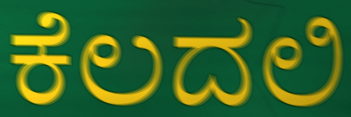
ಕೆಲದಲಿ